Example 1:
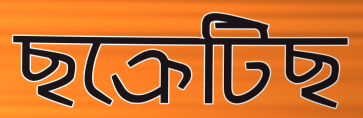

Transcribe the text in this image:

ছক্ৰেটিছ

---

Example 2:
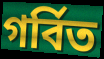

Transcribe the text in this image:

গৰ্বিত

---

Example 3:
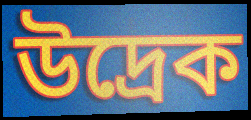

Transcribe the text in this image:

উদ্ৰেক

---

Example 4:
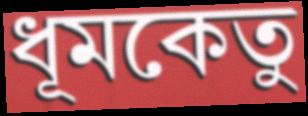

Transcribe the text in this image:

ধূমকেতু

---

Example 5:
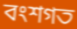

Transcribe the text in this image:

বংশগত